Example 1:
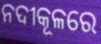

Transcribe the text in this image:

ନଦୀକୂଳରେ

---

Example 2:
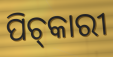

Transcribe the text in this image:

ପିଚ୍‌କାରୀ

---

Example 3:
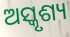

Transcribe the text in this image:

ଅସ୍କୃଶ୍ୟ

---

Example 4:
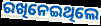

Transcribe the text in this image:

ରଖିନେଇଥିଲେ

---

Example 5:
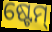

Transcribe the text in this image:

ଷ୍ଟେମ୍